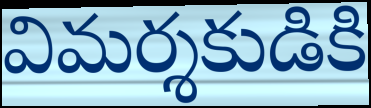
విమర్శకుడికి